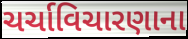
ચર્ચાવિચારણાના